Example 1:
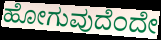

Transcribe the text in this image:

ಹೋಗುವುದೆಂದೇ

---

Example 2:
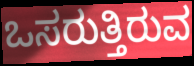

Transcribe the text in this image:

ಒಸರುತ್ತಿರುವ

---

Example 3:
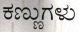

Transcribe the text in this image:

ಕಣ್ಣುಗಳು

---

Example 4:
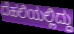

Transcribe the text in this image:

ದೆಹಲಿಯಲ್ಲಿದ್ದು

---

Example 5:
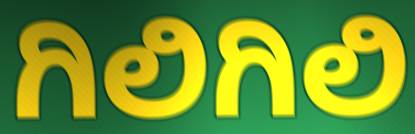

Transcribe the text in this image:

ಗಿಲಿಗಿಲಿ